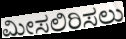
ಮೀಸಲಿರಿಸಲು